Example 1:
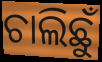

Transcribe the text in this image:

ଚାଲିଛୁଁ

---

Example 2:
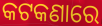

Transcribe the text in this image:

କଟକଣାରେ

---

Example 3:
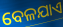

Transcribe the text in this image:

ବେଳଯାଏ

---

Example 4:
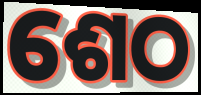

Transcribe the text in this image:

ଶେଠ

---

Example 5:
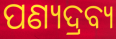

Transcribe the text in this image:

ପଣ୍ୟଦ୍ରବ୍ୟ